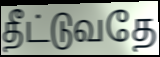
தீட்டுவதே